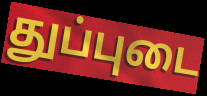
துப்புடை